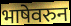
भाषेवरुन